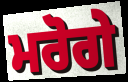
ਮਰੋਗੇ